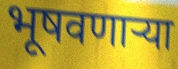
भूषवणाऱ्या